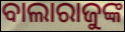
ବାଲାରାଜୁଙ୍କ